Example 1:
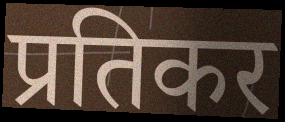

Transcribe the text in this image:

प्रतिकर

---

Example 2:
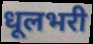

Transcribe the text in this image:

धूलभरी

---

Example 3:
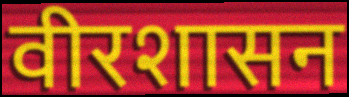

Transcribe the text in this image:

वीरशासन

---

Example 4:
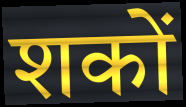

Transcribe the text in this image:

शकों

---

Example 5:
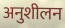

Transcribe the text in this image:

अनुशीलन